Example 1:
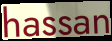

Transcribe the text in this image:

hassan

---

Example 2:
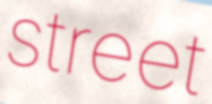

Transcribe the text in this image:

street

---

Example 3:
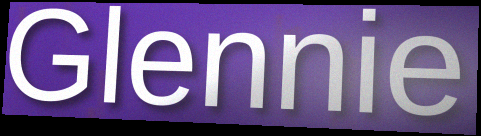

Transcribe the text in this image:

Glennie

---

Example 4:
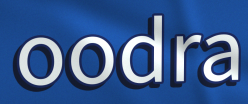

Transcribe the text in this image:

oodra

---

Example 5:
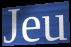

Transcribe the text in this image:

Jeu